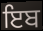
ਇਬ